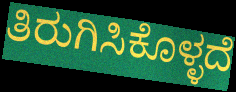
ತಿರುಗಿಸಿಕೊಳ್ಳದೆ